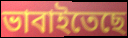
ভাবাইতেছে